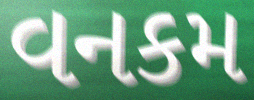
વનકમ